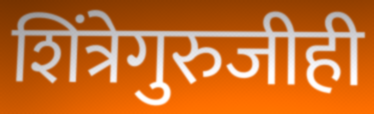
शिंत्रेगुरुजीही